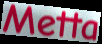
Metta